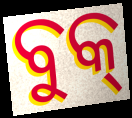
ବୁକ୍